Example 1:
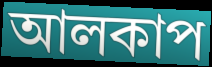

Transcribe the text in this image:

আলকাপ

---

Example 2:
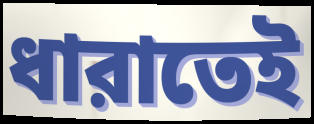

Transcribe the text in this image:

ধারাতেই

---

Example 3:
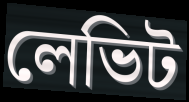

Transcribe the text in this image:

লেভিট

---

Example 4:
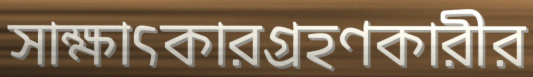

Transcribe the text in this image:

সাক্ষাৎকারগ্রহণকারীর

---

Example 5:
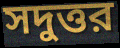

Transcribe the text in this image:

সদুত্তর